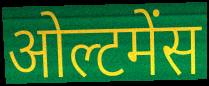
ओल्टमेंस